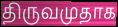
திருவமுதாக